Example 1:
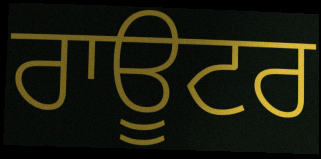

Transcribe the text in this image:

ਰਾਊਟਰ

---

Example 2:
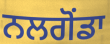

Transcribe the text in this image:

ਨਲਗੋਂਡਾ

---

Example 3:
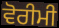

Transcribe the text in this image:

ਵੋਰੀਮੀ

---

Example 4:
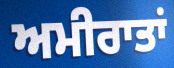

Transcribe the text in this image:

ਅਮੀਰਾਤਾਂ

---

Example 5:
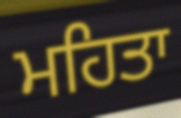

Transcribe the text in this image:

ਮਹਿਤਾ